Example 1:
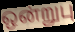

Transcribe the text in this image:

ஒன்றுபு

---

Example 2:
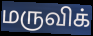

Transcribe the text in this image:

மருவிக்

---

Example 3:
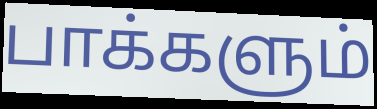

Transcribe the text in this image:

பாக்களும்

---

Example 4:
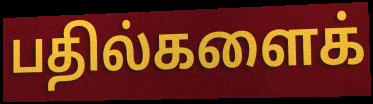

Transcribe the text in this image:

பதில்களைக்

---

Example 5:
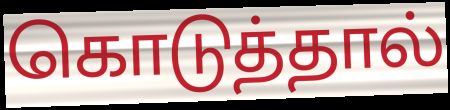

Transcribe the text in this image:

கொடுத்தால்